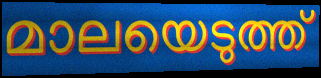
മാലയെടുത്ത്